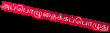
அப்பொழுதைக்கப்பொழுது